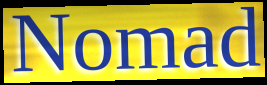
Nomad